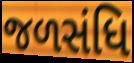
જળસંધિ